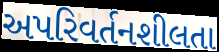
અપરિવર્તનશીલતા